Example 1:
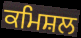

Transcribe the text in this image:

ਕਮਿਸ਼ਲ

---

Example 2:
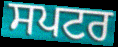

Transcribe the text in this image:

ਸਪਟਰ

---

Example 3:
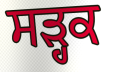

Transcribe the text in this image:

ਸੜ੍ਹਕ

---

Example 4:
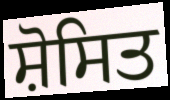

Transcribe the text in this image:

ਸ਼ੋਸਿਤ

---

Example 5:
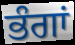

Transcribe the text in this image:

ਭੰਗਾਂ